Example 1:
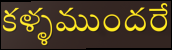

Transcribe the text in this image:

కళ్ళముందరే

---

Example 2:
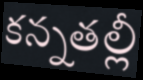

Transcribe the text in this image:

కన్నతల్లీ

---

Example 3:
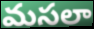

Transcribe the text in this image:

మసలా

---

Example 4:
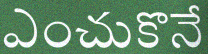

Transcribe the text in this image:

ఎంచుకొనే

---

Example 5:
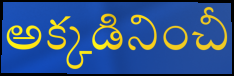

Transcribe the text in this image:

అక్కడినించీ